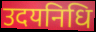
उदयनिधि